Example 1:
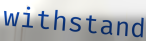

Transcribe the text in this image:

withstand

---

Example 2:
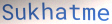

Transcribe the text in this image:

Sukhatme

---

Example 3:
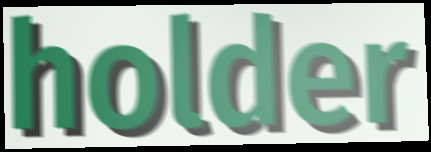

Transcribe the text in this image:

holder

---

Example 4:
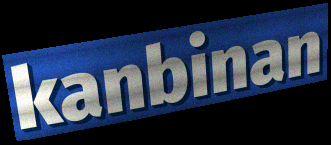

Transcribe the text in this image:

kanbinan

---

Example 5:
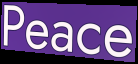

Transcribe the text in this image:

Peace